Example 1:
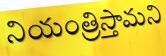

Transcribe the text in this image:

నియంత్రిస్తామని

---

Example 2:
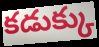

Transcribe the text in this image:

కడుక్కు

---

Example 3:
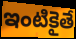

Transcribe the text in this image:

ఇంటికైతే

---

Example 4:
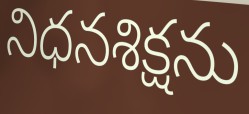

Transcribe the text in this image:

నిధనశిక్షను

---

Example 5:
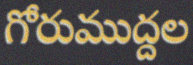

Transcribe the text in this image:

గోరుముద్దల